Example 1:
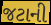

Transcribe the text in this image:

જટાની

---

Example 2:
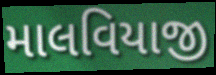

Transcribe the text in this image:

માલવિયાજી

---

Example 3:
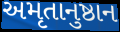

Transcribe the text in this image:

અમૃતાનુષ્ઠાન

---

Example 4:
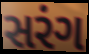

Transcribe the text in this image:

સરંગ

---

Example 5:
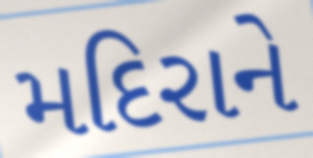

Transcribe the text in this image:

મદિરાને